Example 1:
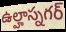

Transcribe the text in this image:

ఉల్హాస్నగర్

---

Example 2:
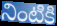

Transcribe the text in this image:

నింటికి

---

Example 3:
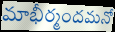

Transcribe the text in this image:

మాభీర్మందమనో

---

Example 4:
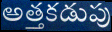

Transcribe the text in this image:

అత్తకడుపు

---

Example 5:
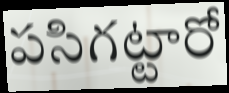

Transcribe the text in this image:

పసిగట్టారో